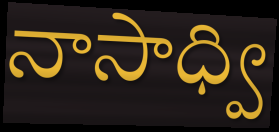
నాసాధ్వి